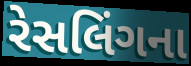
રેસલિંગના